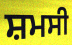
ਸ਼ਮਸੀ